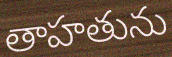
తాహతును